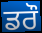
ਡਰੌ